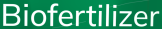
Biofertilizer